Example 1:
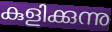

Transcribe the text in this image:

കുളിക്കുന്നു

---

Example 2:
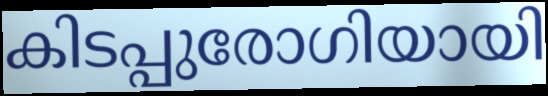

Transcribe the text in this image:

കിടപ്പുരോഗിയായി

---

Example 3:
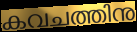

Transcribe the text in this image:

കവചത്തിനു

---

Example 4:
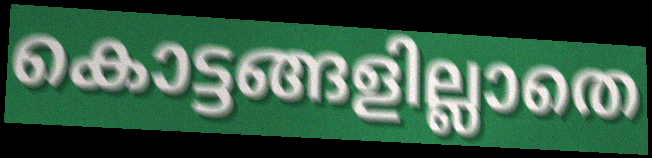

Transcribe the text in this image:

കൊട്ടങ്ങളില്ലാതെ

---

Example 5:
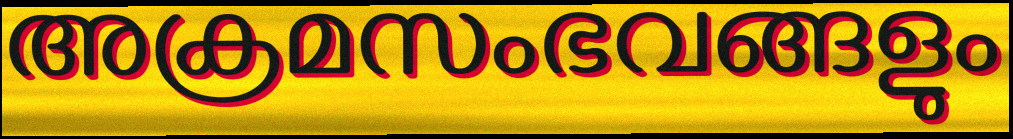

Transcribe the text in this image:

അക്രമസംഭവങ്ങളും